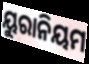
ୟୁରାନିୟମ